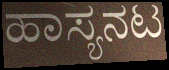
ಹಾಸ್ಯನಟ